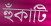
হুঁকাটি